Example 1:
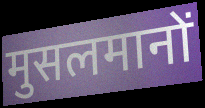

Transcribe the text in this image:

मुसलमानों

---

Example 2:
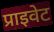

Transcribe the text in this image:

प्राइवेट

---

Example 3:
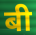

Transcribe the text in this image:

बी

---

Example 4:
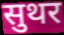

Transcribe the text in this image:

सुथर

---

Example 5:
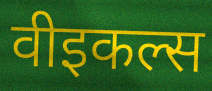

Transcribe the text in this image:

वीइकल्स